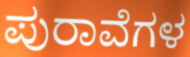
ಪುರಾವೆಗಳ